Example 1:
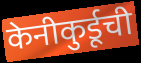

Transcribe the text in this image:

केनीकुर्डूची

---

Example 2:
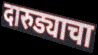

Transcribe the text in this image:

दारुड्याचा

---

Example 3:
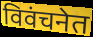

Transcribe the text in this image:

विवंचनेत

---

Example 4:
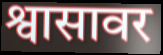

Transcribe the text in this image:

श्वासावर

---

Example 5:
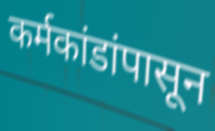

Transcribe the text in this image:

कर्मकांडांपासून